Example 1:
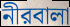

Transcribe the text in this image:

নীরবালা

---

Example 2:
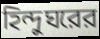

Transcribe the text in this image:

হিন্দুঘরের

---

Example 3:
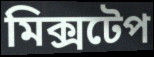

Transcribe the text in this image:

মিক্সটেপ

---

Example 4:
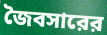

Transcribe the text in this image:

জৈবসারের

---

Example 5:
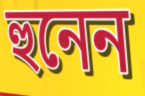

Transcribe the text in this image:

হুনেন